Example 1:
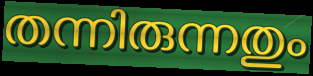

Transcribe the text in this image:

തന്നിരുന്നതും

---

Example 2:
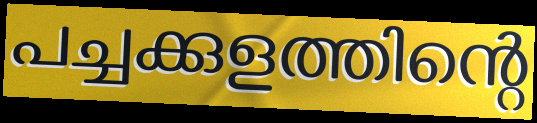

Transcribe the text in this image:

പച്ചക്കുളത്തിന്റെ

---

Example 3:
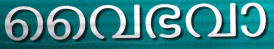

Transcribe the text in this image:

വൈഭവാ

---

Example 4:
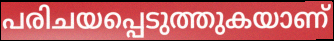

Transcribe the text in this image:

പരിചയപ്പെടുത്തുകയാണ്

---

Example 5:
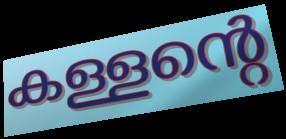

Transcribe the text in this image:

കള്ളന്റെ